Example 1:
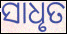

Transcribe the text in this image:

ସାଧୃତ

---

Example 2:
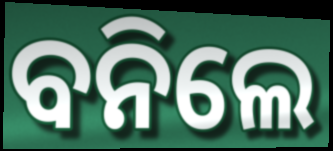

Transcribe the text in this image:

ବନିଲେ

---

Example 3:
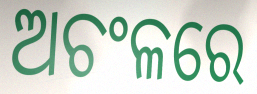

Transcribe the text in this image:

ଅଚଂଳରେ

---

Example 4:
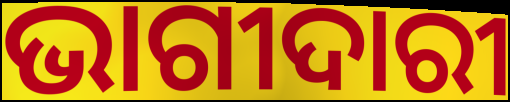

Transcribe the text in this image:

ଭାଗୀଦାରୀ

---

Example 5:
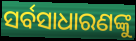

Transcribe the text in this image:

ସର୍ବସାଧାରଣଙ୍କୁ